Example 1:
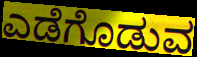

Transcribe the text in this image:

ಎಡೆಗೊಡುವ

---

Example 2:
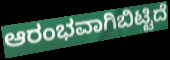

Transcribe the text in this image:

ಆರಂಭವಾಗಿಬಿಟ್ಟಿದೆ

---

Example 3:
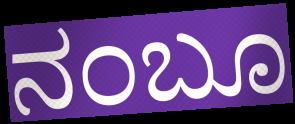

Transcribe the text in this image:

ನಂಬೂ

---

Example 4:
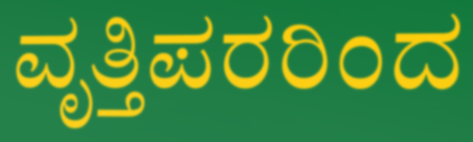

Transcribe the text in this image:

ವೃತ್ತಿಪರರಿಂದ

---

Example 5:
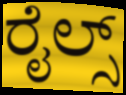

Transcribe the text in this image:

ರೈಲ್ಸ್